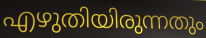
എഴുതിയിരുന്നതും